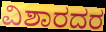
ವಿಶಾರದರ